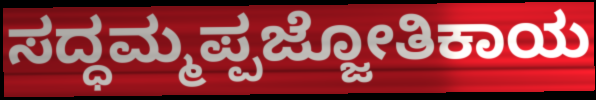
ಸದ್ಧಮ್ಮಪ್ಪಜ್ಜೋತಿಕಾಯ